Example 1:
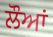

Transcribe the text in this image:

ਲੌਆਂ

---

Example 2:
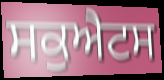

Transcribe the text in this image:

ਸਕੁਐਟਸ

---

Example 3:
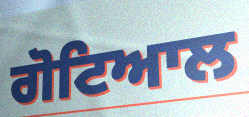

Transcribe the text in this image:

ਗੋਟਿਆਲ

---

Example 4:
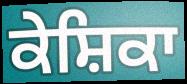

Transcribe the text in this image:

ਕੇਸ਼ਿਕਾ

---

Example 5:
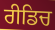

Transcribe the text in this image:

ਰੀਡਿਚ